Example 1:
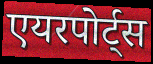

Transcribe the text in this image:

एयरपोर्ट्स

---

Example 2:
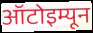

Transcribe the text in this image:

ऑटोइम्‍यून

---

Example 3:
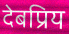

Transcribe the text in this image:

देबप्रिय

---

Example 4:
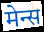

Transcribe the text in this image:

मेन्स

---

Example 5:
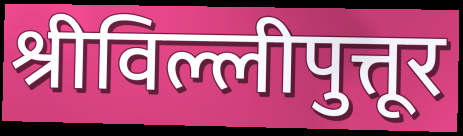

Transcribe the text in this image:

श्रीविल्लीपुत्तूर